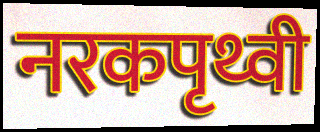
नरकपृथ्वी